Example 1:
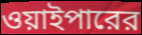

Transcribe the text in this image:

ওয়াইপারের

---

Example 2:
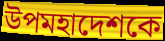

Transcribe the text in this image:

উপমহাদেশকে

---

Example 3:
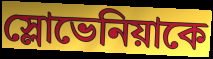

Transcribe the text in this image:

স্লোভেনিয়াকে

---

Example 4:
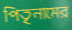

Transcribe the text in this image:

পিতৃনামের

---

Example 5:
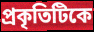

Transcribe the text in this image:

প্রকৃতিটিকে